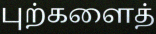
புற்களைத்